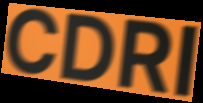
CDRI